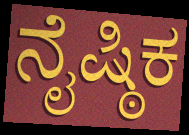
ನೈಷ್ಠಿಕ